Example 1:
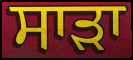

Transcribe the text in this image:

ਸਾੜਾ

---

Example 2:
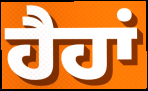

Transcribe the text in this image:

ਹੈਹਾਂ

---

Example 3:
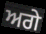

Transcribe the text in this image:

ਅਗੇ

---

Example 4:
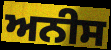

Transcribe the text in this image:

ਅਨੀਸ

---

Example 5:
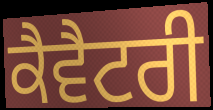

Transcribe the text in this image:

ਕੈਵੈਟਰੀ